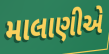
માલાણીએ